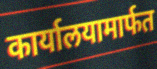
कार्यालयामार्फत